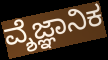
ವ್ಶೆಜ್ಞಾನಿಕ